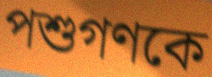
পশুগণকে